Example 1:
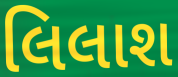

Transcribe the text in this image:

લિલાશ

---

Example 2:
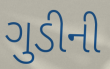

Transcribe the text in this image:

ગુડીની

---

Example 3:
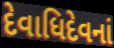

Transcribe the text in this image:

દેવાધિદેવનાં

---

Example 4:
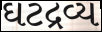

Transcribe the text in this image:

ઘટદ્રવ્ય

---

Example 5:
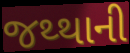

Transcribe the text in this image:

જથ્થાની